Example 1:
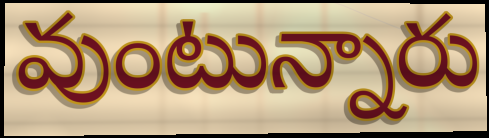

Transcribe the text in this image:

వుంటున్నారు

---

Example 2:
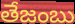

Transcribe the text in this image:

తేజంబు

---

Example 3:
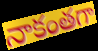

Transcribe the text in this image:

నాకంతగా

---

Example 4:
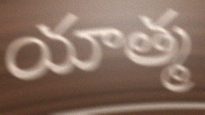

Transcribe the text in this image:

యాత్మ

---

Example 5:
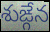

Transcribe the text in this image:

శుఙ్గేన